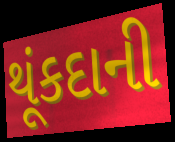
થૂંકદાની